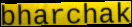
bharchak